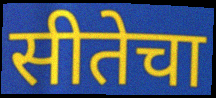
सीतेचा